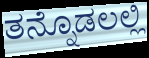
ತನ್ನೊಡಲಲ್ಲಿ